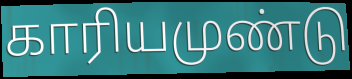
காரியமுண்டு